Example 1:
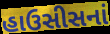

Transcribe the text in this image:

હાઉસીસનાં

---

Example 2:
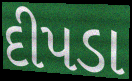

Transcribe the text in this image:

દીપડા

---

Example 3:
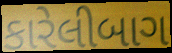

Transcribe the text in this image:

કારેલીબાગ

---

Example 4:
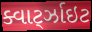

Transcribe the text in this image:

ક્વાર્ટ્ઝાઇટ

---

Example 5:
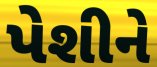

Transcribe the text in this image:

પેશીને